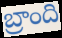
బ్రాంది